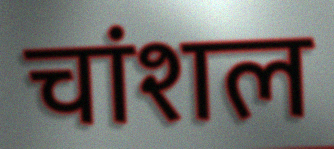
चांशल